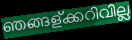
ഞങ്ങള്ക്കറിവില്ല